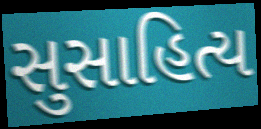
સુસાહિત્ય